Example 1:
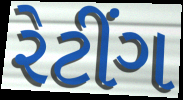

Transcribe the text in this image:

રેટીંગ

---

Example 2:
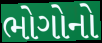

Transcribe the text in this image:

ભોગોનો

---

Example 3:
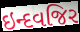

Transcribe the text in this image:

ઇન્દવજિર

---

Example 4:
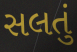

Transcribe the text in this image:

સલતું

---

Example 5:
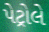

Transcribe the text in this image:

પેટ્રોલે